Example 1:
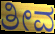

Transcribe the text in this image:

ತೀವ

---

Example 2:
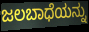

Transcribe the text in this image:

ಜಲಬಾಧೆಯನ್ನು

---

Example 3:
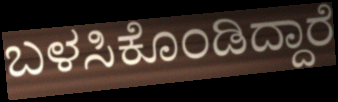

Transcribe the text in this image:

ಬಳಸಿಕೊಂಡಿದ್ದಾರೆ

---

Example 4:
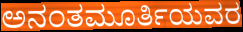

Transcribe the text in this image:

ಅನಂತಮೂರ್ತಿಯವರ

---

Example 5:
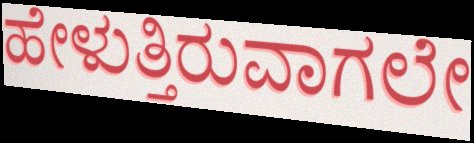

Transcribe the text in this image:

ಹೇಳುತ್ತಿರುವಾಗಲೇ